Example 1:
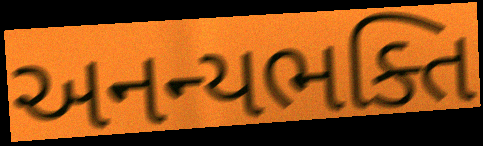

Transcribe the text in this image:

અનન્યભક્તિ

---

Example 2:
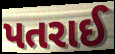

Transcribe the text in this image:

પતરાઈ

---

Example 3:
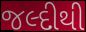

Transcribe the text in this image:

જલ્દીથી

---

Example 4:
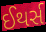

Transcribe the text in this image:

ઈથર્સ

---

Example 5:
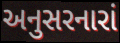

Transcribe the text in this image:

અનુસરનારાં